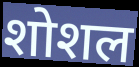
शोशल